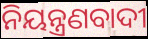
ନିୟନ୍ତ୍ରଣବାଦୀ